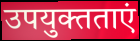
उपयुक्तताएं